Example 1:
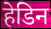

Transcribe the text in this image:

हेडिन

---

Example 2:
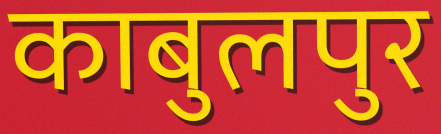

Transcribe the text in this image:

काबुलपुर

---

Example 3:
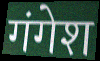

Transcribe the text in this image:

गंगेश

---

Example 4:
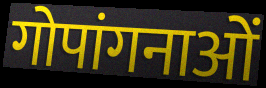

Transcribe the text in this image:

गोपांगनाओं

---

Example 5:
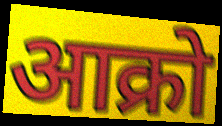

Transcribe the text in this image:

आक्रो